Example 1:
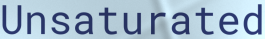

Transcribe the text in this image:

Unsaturated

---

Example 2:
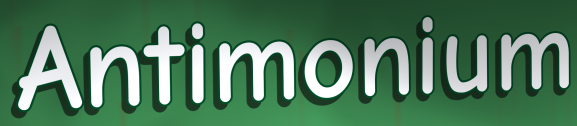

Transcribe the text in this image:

Antimonium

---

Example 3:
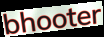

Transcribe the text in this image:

bhooter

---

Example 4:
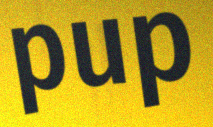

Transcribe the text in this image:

pup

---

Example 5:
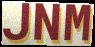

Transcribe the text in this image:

JNM